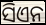
ସିଏନ